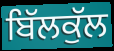
ਬਿੱਲਕੁੱਲ